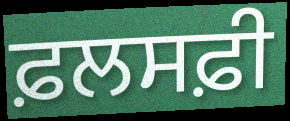
ਫ਼ਲਸਫ਼ੀ